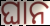
ଘାନ